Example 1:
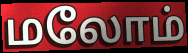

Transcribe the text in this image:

மலோம்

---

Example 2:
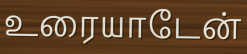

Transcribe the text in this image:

உரையாடேன்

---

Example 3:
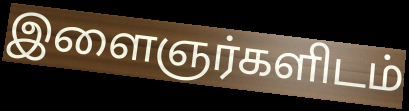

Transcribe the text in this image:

இளைஞர்களிடம்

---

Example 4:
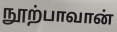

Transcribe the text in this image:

நூற்பாவான்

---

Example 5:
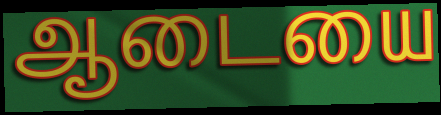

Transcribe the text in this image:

ஆடையை